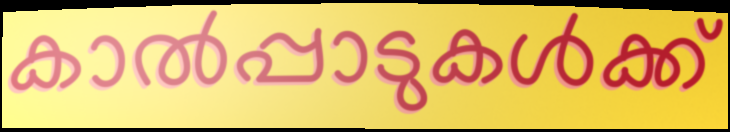
കാൽപ്പാടുകൾക്ക്